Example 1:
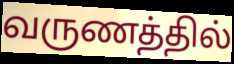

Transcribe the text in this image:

வருணத்தில்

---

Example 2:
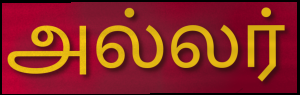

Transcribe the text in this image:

அல்லர்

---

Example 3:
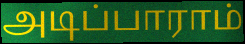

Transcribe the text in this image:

அடிப்பாராம்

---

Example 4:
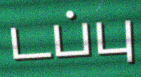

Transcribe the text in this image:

டப்பு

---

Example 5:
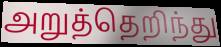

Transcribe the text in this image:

அறுத்தெறிந்து